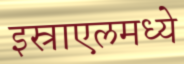
इस्राएलमध्ये